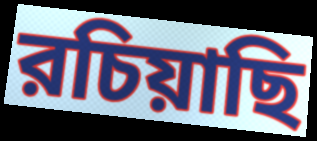
রচিয়াছি